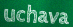
uchava